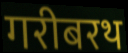
गरीबरथ